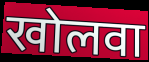
खोलवा